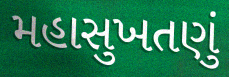
મહાસુખતણું